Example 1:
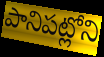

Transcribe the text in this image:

పానిపట్లోని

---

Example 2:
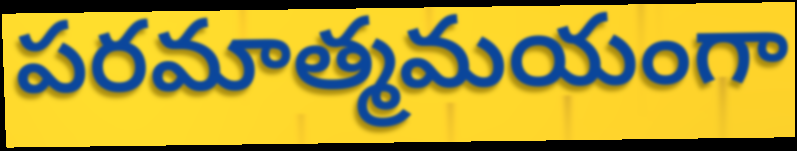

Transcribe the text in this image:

పరమాత్మమయంగా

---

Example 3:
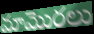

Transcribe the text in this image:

మామొరలు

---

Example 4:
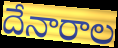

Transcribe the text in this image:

దేనారాల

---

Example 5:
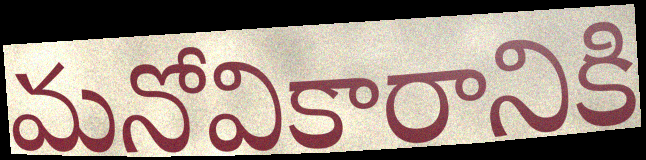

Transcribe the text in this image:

మనోవికారానికి